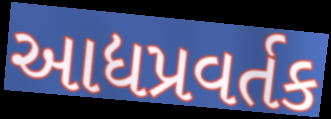
આદ્યપ્રવર્તક